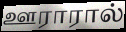
ஊராரால்